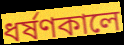
ধর্ষণকালে